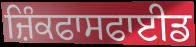
ਜ਼ਿੰਕਫਾਸਫਾਈਡ